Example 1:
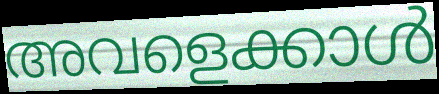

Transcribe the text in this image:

അവളെക്കാൾ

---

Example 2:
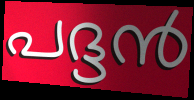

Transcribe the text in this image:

പദ്ദൻ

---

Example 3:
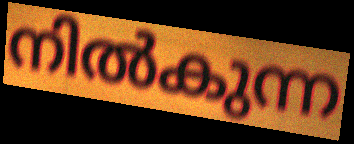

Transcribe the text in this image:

നിൽകുന്ന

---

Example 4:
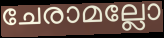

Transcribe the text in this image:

ചേരാമല്ലോ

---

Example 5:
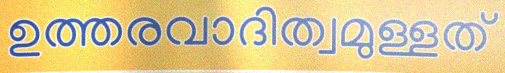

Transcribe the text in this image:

ഉത്തരവാദിത്വമുള്ളത്